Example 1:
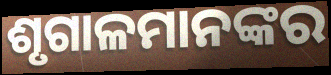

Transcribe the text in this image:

ଶୃଗାଳମାନଙ୍କର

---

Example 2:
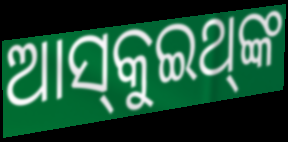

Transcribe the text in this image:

ଆସ୍‌କୁଇଥ୍‌ଙ୍କ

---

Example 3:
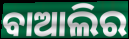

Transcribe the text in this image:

ବାଆଲିର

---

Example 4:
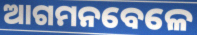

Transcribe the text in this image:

ଆଗମନବେଳେ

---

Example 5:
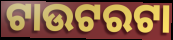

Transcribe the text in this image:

ଟାଉଟରଟା